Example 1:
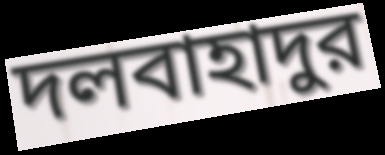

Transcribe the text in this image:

দলবাহাদুর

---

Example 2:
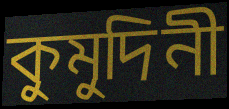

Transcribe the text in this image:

কুমুদিনী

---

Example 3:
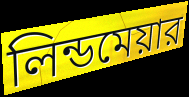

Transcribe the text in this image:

লিন্ডমেয়ার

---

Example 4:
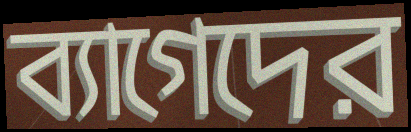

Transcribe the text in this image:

ব্যাগেদের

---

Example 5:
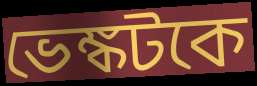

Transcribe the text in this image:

ভেঙ্কটকে